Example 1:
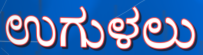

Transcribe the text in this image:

ಉಗುಳಲು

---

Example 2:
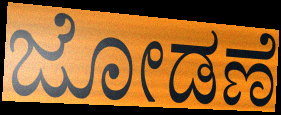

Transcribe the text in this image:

ಜೋಡಣೆ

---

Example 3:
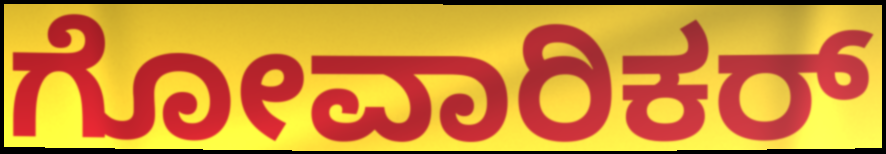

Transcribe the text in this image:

ಗೋವಾರಿಕರ್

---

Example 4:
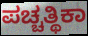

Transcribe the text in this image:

ಪಚ್ಚತ್ಥಿಕಾ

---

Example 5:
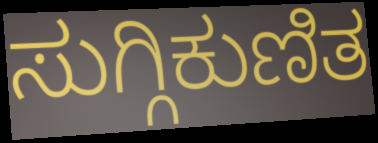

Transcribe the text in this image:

ಸುಗ್ಗಿಕುಣಿತ